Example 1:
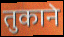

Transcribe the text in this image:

तुकाने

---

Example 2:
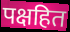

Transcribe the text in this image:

पक्षहित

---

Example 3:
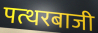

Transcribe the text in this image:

पत्थरबाजी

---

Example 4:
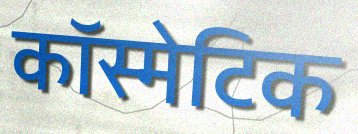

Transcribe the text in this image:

कॉस्मेटिक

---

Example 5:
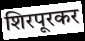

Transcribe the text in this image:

शिरपूरकर